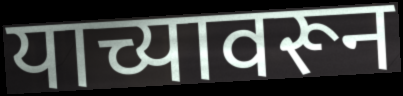
याच्यावरून